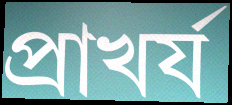
প্রাখর্য